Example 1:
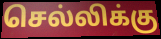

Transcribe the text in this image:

செல்லிக்கு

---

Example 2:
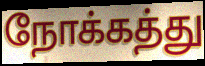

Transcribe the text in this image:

நோக்கத்து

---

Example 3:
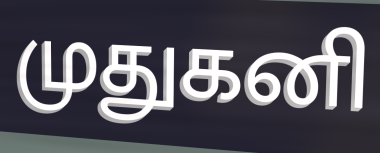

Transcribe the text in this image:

முதுகனி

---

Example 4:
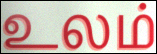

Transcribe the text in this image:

உலம்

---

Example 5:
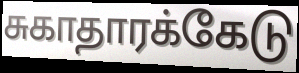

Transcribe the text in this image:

சுகாதாரக்கேடு